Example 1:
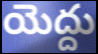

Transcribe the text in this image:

యెద్దు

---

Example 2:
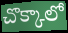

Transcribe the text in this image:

చొక్కాలో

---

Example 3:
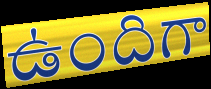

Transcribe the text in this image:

ఉందిగా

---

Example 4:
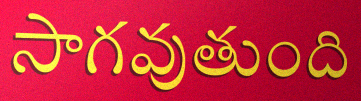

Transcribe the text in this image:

సాగవుతుంది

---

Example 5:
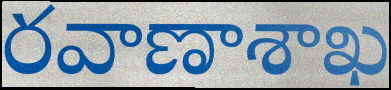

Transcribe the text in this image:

రవాణాశాఖ